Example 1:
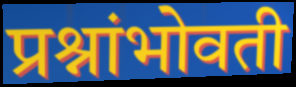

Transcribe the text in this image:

प्रश्नांभोवती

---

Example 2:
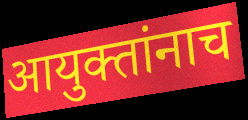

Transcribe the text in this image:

आयुक्तांनाच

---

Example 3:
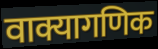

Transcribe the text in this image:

वाक्यागणिक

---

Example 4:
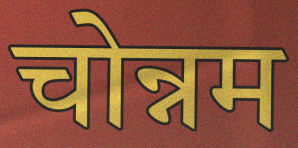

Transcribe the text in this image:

चोन्नम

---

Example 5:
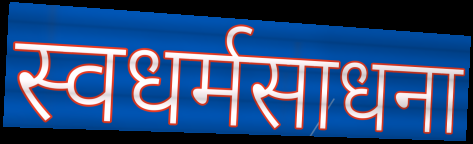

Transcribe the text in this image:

स्वधर्मसाधना